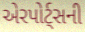
એરપોર્ટ્સની